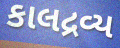
કાલદ્રવ્ય